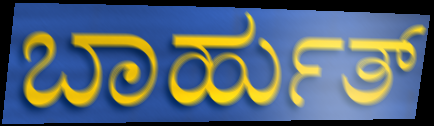
ಬಾರ್ಹುತ್